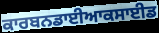
ਕਾਰਬਨਡਾਈਆਕਸਾਈਡ